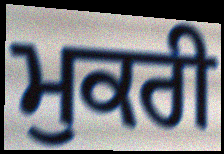
ਮੁਕਰੀ